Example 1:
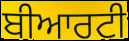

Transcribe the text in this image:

ਬੀਆਰਟੀ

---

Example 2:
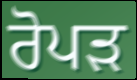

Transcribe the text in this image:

ਰੋਪਡ਼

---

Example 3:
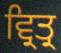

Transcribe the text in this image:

ਵ੍ਰਿਤ੍ਰ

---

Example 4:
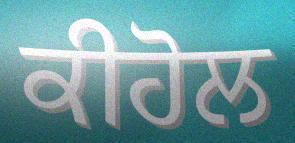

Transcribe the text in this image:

ਕੀਹੋਲ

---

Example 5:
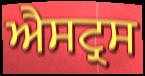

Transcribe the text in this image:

ਐਸਟ੍ਰਸ